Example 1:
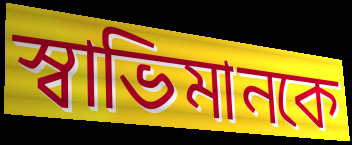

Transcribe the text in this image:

স্বাভিমানকে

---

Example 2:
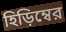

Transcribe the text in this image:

হিড়িম্বের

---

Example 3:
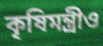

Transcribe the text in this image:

কৃষিমন্ত্রীও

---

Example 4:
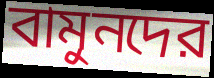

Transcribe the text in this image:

বামুনদের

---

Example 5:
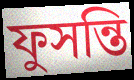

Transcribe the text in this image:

ফুসন্তি